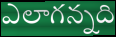
ఎలాగన్నది